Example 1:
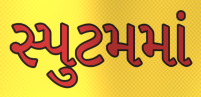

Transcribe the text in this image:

સ્પુટમમાં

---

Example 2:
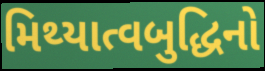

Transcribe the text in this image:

મિથ્યાત્વબુદ્ધિનો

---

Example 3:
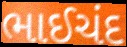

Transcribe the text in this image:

ભાઈચંદ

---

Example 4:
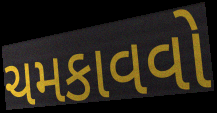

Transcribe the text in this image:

ચમકાવવો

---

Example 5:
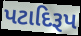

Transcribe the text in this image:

પટાદિરૂપ